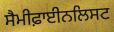
ਸੈਮੀਫ਼ਾਈਨਲਿਸਟ